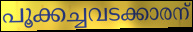
പൂക്കച്ചവടക്കാരന്